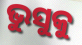
ଭୁସୁକୁ